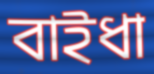
বাইধা